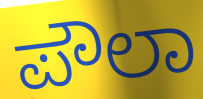
ಪೌಲಾ